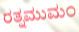
ರತ್ನಮುಮಂ